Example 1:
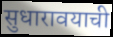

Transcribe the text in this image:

सुधारावयाची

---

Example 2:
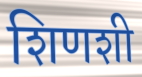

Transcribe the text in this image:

शिणशी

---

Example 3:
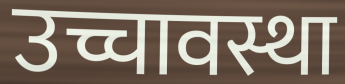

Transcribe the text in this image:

उच्चावस्था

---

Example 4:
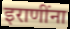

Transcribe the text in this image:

इराणींना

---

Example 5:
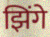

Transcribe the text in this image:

झिंगे